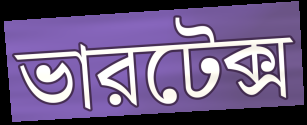
ভারটেক্স